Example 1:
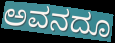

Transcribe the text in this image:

ಅವನದೂ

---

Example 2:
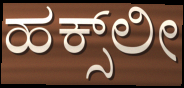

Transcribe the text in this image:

ಹಕ್ಸ್‌ಲೀ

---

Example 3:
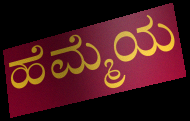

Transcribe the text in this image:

ಹೆಮ್ಮೆಯ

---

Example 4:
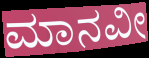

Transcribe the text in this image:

ಮಾನವೀ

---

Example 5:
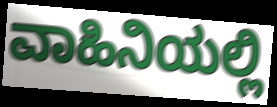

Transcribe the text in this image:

ವಾಹಿನಿಯಲ್ಲಿ